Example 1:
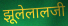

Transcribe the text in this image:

झूलेलालजी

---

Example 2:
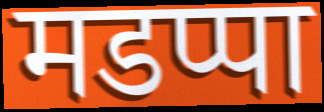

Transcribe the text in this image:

मडप्पा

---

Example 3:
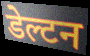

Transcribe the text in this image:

डेल्टन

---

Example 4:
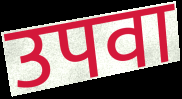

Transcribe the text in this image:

उपवा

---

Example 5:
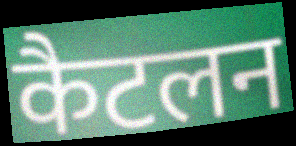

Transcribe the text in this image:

कैटलन